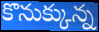
కొనుక్కున్న